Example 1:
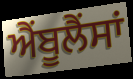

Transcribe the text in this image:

ਐੰਬੂਲੈਂਸਾਂ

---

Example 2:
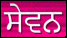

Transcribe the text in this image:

ਸੇਵਨ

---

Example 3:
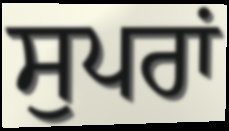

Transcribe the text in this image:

ਸੁਪਰਾਂ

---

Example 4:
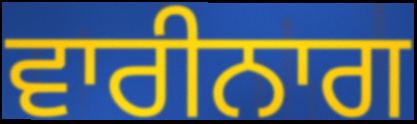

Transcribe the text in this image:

ਵਾਰੀਨਾਗ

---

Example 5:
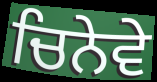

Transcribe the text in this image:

ਚਿਨੇਵੇ